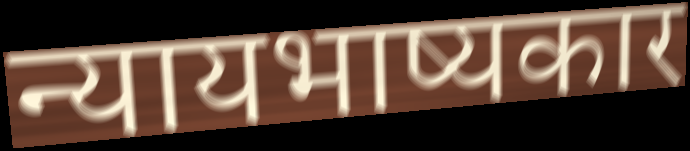
न्यायभाष्यकार